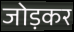
जोड़कर